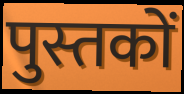
पुस्‍तकों